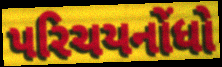
પરિચયનોંધો